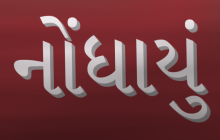
નોંધાયું